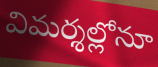
విమర్శల్లోనూ